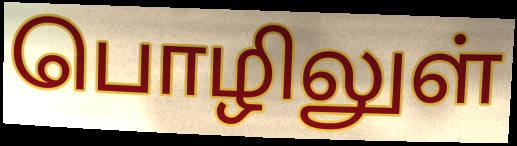
பொழிலுள்